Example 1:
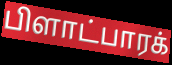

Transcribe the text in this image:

பிளாட்பாரக்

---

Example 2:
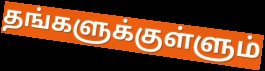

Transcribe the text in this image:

தங்களுக்குள்ளும்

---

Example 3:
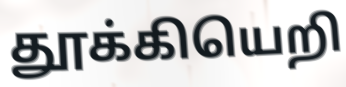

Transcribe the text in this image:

தூக்கியெறி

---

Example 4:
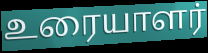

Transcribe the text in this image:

உரையாளர்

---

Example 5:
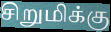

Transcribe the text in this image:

சிறுமிக்கு